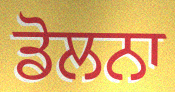
ਡੋਲਨਾ